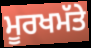
ਮੂਰਖਮੱਤੇ